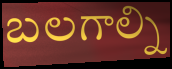
బలగాల్ని